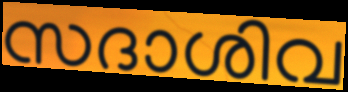
സദാശിവ